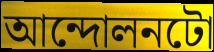
আন্দোলনটো